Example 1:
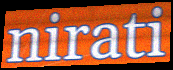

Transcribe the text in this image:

nirati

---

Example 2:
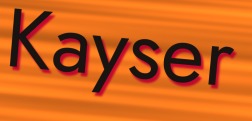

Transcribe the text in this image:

Kayser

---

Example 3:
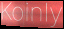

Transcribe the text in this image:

Koinly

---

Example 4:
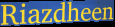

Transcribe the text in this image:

Riazdheen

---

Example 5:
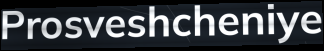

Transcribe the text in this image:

Prosveshcheniye